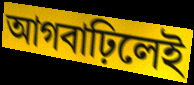
আগবাঢ়িলেই